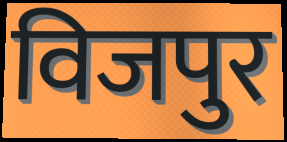
विजपुर